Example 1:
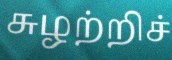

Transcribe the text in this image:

சுழற்றிச்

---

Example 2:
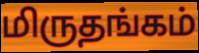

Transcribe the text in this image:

மிருதங்கம்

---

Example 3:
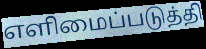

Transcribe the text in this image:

எளிமைப்படுத்தி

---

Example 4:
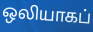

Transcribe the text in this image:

ஒலியாகப்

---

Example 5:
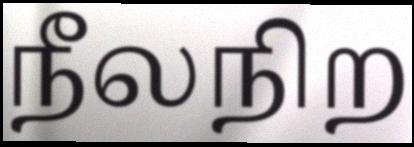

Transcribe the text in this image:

நீலநிற